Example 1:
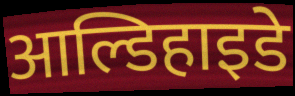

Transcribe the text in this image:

आल्डिहाइडे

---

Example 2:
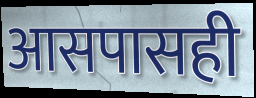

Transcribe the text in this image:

आसपासही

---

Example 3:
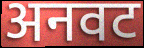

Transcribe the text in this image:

अनवट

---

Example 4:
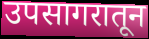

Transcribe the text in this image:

उपसागरातून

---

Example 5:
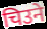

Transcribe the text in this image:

चिउने